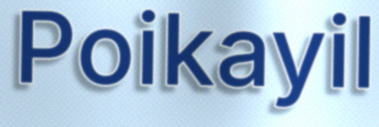
Poikayil